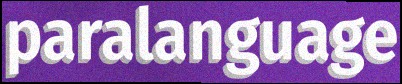
paralanguage